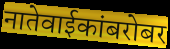
नातेवाईकांबरोबर